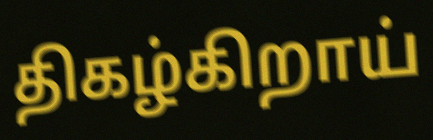
திகழ்கிறாய்